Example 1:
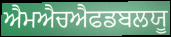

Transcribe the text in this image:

ਐਮਐਚਐਫਡਬਲਯੂ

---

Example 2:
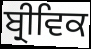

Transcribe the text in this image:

ਬ੍ਰੀਵਿਕ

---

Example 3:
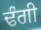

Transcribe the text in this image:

ਢੰਗੀ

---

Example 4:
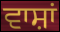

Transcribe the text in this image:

ਵਾਸ਼ਾਂ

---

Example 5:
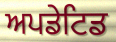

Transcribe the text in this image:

ਅਪਡੇਟਿਡ